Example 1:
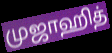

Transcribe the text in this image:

முஜாஹித்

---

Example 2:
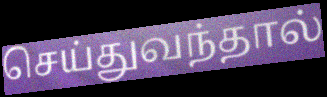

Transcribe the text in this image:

செய்துவந்தால்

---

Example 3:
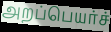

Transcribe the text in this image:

அறப்பெயர்ச்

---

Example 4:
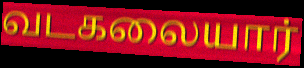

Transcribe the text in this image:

வடகலையார்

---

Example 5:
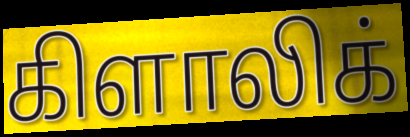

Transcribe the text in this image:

கிளாலிக்